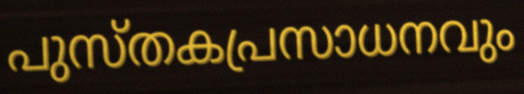
പുസ്തകപ്രസാധനവും